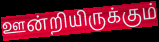
ஊன்றியிருக்கும்